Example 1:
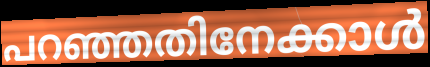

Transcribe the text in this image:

പറഞ്ഞതിനേക്കാൾ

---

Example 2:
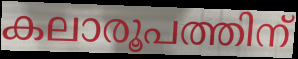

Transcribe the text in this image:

കലാരൂപത്തിന്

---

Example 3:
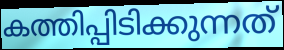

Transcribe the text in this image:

കത്തിപ്പിടിക്കുന്നത്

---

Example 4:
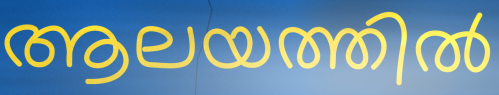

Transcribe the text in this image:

ആലയത്തിൽ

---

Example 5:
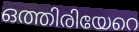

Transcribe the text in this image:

ഒത്തിരിയേറെ